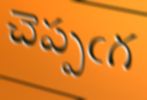
చెప్పఁగ